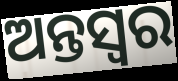
ଅନ୍ତସ୍ୱର